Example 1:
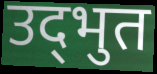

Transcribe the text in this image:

उद्भुत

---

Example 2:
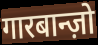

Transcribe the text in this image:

गारबान्ज़ो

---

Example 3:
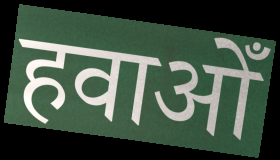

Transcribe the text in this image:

हवाओँ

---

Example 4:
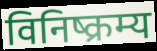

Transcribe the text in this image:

विनिष्क्रम्य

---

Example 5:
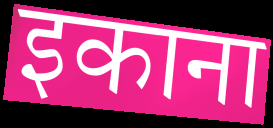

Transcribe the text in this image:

इकाना